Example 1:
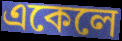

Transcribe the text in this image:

একেলে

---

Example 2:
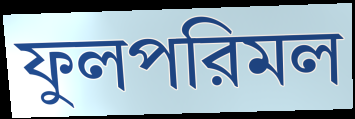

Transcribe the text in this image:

ফুলপরিমল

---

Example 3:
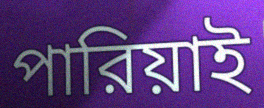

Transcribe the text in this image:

পারিয়াই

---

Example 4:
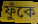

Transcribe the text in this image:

ফুঁকে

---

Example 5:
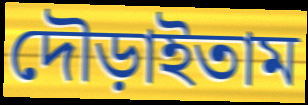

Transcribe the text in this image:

দৌড়াইতাম